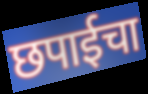
छपाईचा